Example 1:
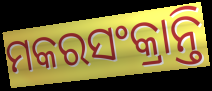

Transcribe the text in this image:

ମକରସଂକ୍ରାନ୍ତି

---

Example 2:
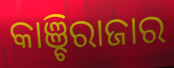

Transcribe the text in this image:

କାଞ୍ଚିରାଜାର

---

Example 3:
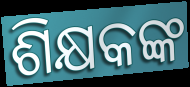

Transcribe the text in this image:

ଶିକ୍ଷକଙ୍କ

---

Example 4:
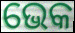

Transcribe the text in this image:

ଭେକ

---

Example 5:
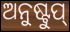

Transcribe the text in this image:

ଅନୁଷ୍ଟୁପ୍